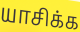
யாசிக்க